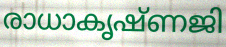
രാധാകൃഷ്ണജി